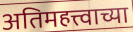
अतिमहत्त्वाच्या